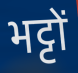
भट्टों